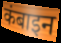
कंबाइन